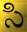
సి